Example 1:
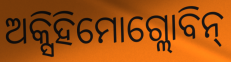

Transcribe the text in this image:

ଅକ୍ସିହିମୋଗ୍ଲୋବିନ୍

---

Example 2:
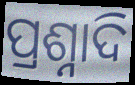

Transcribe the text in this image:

ପ୍ରଶ୍ନାଦି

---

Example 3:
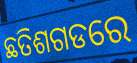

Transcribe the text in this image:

ଛତିଶଗଡରେ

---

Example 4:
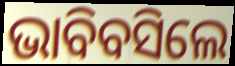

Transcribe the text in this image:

ଭାବିବସିଲେ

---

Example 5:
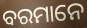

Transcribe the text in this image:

ବରମାନେ